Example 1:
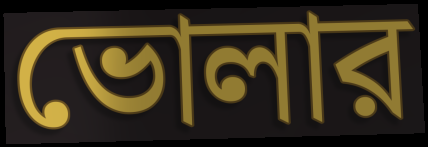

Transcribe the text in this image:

ভোলার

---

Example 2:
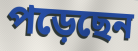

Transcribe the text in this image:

পড়েছেন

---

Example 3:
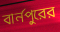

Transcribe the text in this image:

বার্নপুরের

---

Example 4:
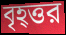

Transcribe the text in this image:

বৃহ্ত্তর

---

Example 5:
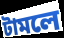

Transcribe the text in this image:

টামলে